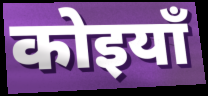
कोइयाँ